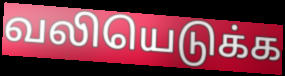
வலியெடுக்க